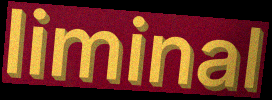
liminal